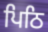
ਪਿਠਿ